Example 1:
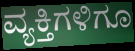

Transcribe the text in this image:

ವ್ಯಕ್ತಿಗಳಿಗೂ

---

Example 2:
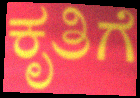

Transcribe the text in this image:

ಕೃತಿಗೆ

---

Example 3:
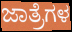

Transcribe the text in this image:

ಜಾತ್ರೆಗಳ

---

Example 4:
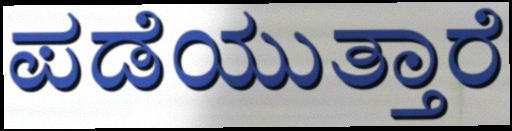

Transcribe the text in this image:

ಪಡೆಯುತ್ತಾರೆ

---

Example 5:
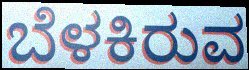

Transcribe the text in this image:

ಬೆಳಕಿರುವ